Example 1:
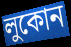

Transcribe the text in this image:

লুকোন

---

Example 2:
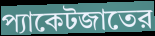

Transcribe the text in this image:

প্যাকেটজাতের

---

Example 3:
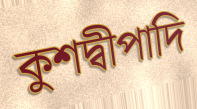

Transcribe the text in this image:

কুশদ্বীপাদি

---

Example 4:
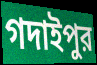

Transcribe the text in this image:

গদাইপুর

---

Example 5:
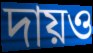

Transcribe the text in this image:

দায়ও